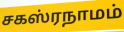
சகஸ்ரநாமம்